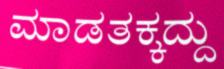
ಮಾಡತಕ್ಕದ್ದು